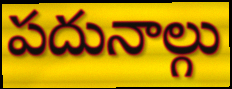
పదునాల్గు